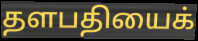
தளபதியைக்